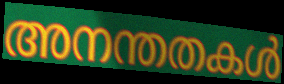
അനന്തതകൾ